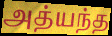
அத்யந்த